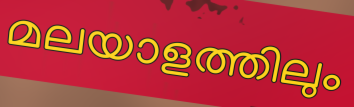
മലയാളത്തിലും